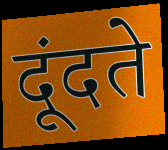
दूंदते